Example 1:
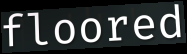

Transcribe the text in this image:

floored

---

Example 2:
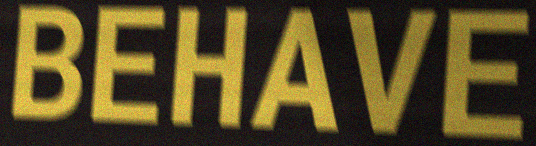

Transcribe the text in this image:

BEHAVE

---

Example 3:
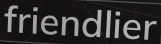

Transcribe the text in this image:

friendlier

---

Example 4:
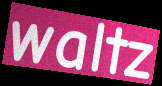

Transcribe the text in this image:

waltz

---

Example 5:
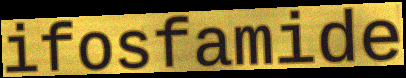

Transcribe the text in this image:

ifosfamide